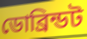
ডোব্রিন্ডট